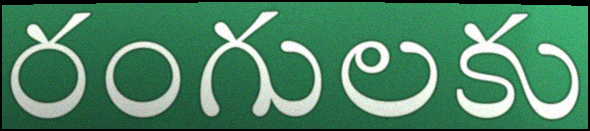
రంగులకు